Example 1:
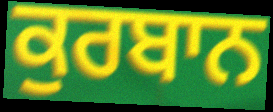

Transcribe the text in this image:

ਕੁਰਬਾਨ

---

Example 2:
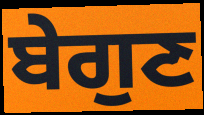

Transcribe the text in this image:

ਬੇਗੁਣ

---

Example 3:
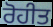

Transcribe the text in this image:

ਰੋਹੀਤ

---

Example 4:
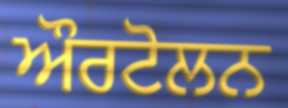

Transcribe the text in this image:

ਔਰਟੋਲਨ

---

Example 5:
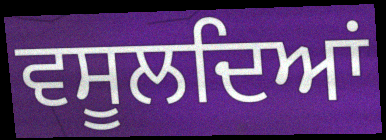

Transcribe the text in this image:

ਵਸੂਲਦਿਆਂ